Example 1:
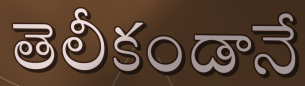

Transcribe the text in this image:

తెలీకండానే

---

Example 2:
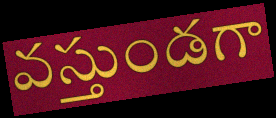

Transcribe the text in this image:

వస్తుండగా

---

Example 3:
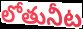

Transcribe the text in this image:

లోతునీట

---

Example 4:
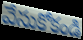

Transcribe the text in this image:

వేసుకోకండి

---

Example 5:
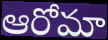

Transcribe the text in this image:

ఆరోమా